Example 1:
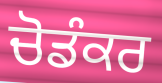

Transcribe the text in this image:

ਚੋਡੰਕਰ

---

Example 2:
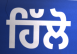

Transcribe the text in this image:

ਹਿੱਲੋ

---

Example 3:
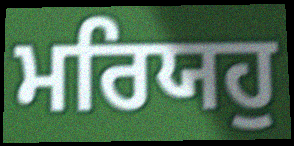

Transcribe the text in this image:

ਮਰਿਯਹੁ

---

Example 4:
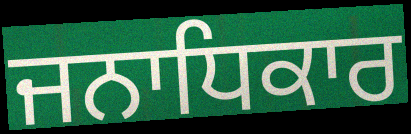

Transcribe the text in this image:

ਜਨਾਧਿਕਾਰ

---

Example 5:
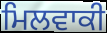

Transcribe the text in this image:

ਮਿਲਵਾਕੀ